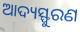
ଆଦ୍ୟସ୍ଫୁରଣ